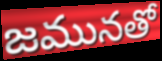
జమునతో